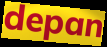
depan